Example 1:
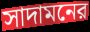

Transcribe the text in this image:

সাদামনের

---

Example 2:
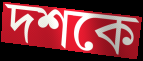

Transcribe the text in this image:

দশকে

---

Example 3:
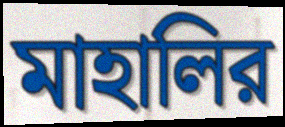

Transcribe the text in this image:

মাহালির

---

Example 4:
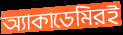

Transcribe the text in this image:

অ্যাকাডেমিরই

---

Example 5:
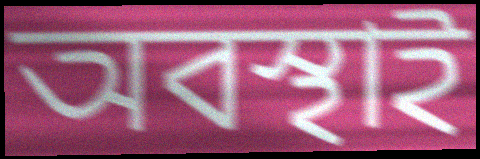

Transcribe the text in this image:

অবস্থাই